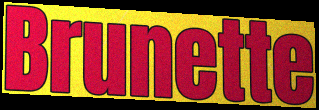
Brunette